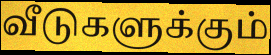
வீடுகளுக்கும்